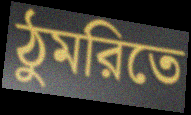
ঠুমরিতে